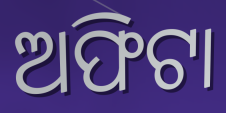
ଅଫିଟା